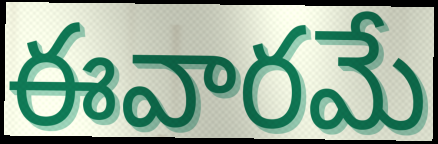
ఈవారమే